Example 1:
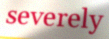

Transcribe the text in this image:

severely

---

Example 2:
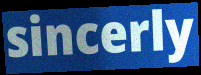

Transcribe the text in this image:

sincerly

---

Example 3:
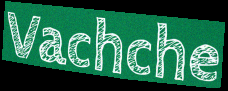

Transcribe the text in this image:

Vachche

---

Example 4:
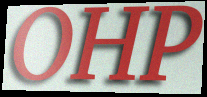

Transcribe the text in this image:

OHP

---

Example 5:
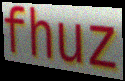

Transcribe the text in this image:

fhuz